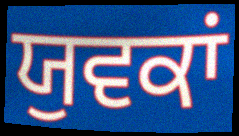
ਯੁਵਕਾਂ